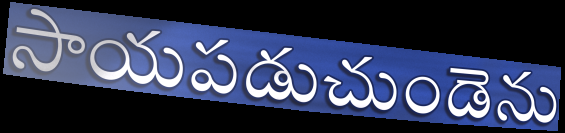
సాయపడుచుండెను